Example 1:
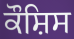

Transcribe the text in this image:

ਕੌਸ਼ਿਸ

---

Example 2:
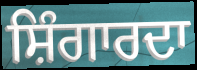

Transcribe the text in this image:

ਸ਼ਿੰਗਾਰਦਾ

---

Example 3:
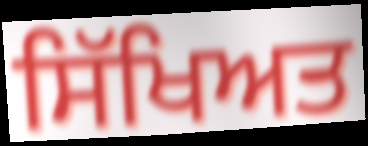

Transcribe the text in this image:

ਸਿੱਖਿਅਤ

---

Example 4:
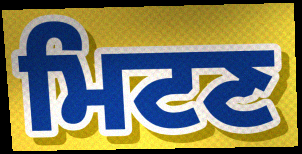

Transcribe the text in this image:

ਮਿਟਣ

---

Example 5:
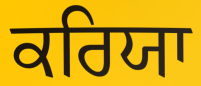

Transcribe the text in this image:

ਕਰਿਯਾ